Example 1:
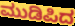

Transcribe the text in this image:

ಮುಡಿಪಿದ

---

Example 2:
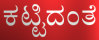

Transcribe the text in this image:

ಕಟ್ಟಿದಂತೆ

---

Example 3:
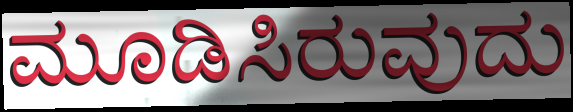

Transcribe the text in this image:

ಮೂಡಿಸಿರುವುದು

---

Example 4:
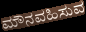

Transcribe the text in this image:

ಮೌನವಹಿಸುವ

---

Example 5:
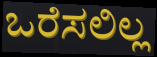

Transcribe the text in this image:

ಒರೆಸಲಿಲ್ಲ